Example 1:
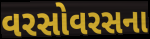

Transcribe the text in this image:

વરસોવરસના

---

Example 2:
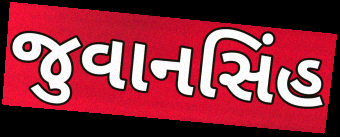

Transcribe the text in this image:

જુવાનસિંહ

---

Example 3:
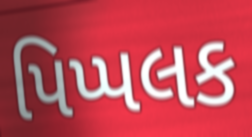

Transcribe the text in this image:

પિપ્પલક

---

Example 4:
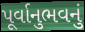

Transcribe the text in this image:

પૂર્વાનુભવનું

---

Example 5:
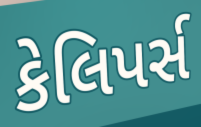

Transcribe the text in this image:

કેલિપર્સ